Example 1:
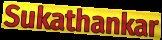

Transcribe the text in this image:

Sukathankar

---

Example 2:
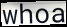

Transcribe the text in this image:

whoa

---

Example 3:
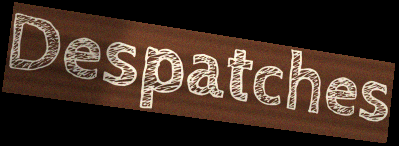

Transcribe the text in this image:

Despatches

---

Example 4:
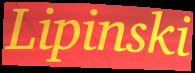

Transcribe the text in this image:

Lipinski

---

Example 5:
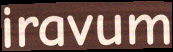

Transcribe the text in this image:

iravum